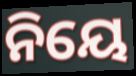
ନିୟେ